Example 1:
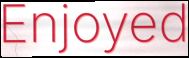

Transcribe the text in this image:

Enjoyed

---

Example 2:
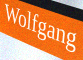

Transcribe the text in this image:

Wolfgang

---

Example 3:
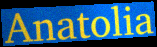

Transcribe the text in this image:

Anatolia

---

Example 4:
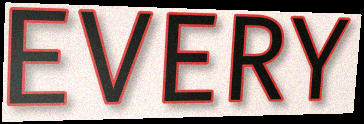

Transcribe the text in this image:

EVERY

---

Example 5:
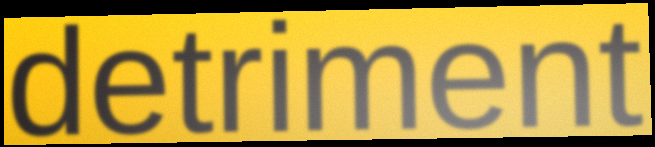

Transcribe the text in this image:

detriment